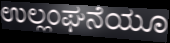
ಉಲ್ಲಂಘನೆಯೂ